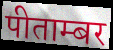
पीताम्बर